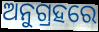
ଅନୁଗ୍ରହରେ